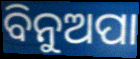
ବିନୁଅପା